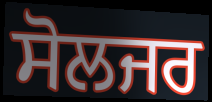
ਸੋਲਜਰ